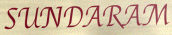
SUNDARAM